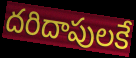
దరిదాపులకే